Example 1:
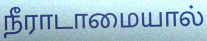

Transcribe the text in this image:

நீராடாமையால்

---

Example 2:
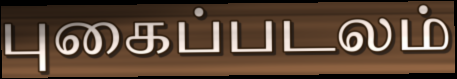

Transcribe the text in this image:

புகைப்படலம்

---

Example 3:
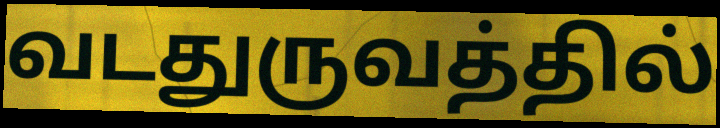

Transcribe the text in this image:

வடதுருவத்தில்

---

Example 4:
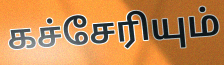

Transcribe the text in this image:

கச்சேரியும்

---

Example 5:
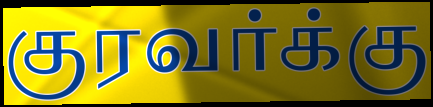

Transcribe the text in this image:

குரவர்க்கு